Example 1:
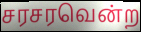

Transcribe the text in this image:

சரசரவென்ற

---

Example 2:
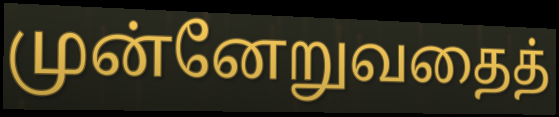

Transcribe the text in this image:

முன்னேறுவதைத்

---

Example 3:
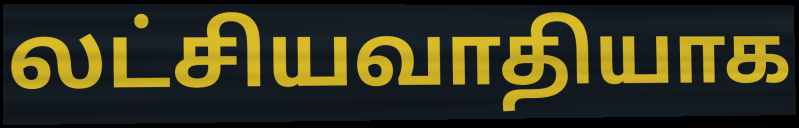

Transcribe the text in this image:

லட்சியவாதியாக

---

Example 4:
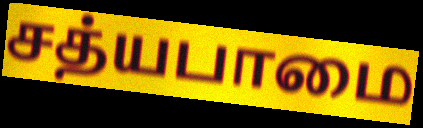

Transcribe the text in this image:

சத்யபாமை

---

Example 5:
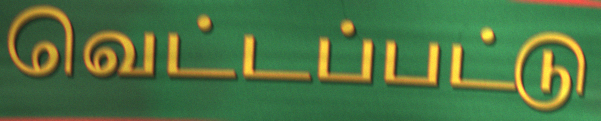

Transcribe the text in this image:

வெட்டப்பட்டு